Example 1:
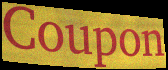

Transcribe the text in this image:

Coupon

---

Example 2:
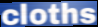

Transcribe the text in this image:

cloths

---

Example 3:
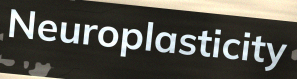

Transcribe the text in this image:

Neuroplasticity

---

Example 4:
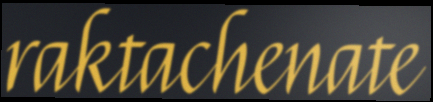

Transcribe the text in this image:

raktachenate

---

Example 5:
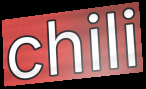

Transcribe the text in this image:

chili